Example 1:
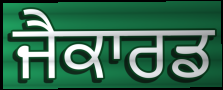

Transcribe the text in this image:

ਜੈਕਾਰਡ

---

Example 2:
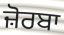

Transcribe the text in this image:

ਜ਼ੋਰਬਾ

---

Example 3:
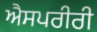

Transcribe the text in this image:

ਐਸਪਰੀਰੀ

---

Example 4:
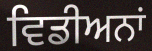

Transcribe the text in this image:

ਵਿਡੀਅਨਾਂ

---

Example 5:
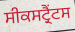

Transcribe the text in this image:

ਸੀਕਸਟ੍ਰੈਂਟਸ